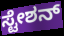
ಸ್ಟೇಶನ್